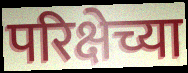
परिक्षेच्या